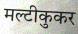
मल्टीकुकर